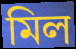
মিল